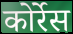
कोर्रेस